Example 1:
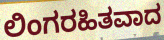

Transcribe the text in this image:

ಲಿಂಗರಹಿತವಾದ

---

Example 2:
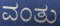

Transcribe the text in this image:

ವಂತು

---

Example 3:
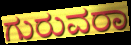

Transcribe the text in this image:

ಗುರುವರಾ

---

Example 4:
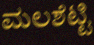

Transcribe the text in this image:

ಮಲಶೆಟ್ಟಿ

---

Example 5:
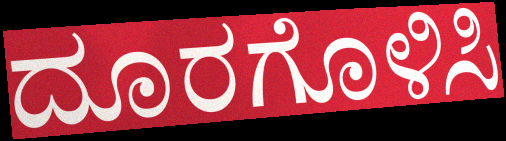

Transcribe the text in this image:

ದೂರಗೊಳಿಸಿ